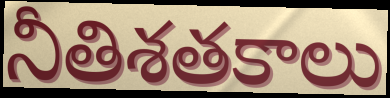
నీతిశతకాలు